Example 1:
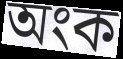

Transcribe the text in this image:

অংক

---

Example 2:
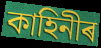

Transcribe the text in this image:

কাহিনীৰ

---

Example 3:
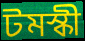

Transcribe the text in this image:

টমস্কী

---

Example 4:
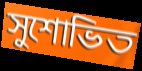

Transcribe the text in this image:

সুশোভিত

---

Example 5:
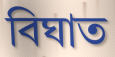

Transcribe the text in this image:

বিঘাত